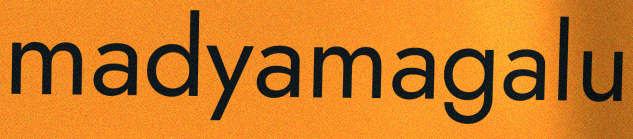
madyamagalu